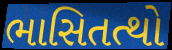
ભાસિતત્થો